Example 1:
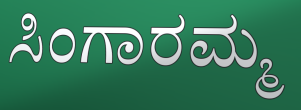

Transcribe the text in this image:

ಸಿಂಗಾರಮ್ಮ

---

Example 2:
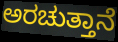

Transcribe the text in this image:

ಅರಚುತ್ತಾನೆ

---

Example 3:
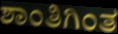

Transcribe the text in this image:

ಶಾಂತಿಗಿಂತ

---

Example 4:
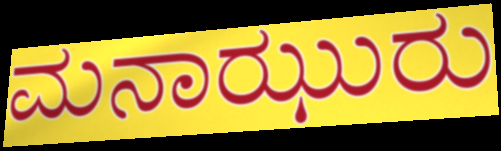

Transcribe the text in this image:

ಮನಾಝುರು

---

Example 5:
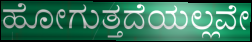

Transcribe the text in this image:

ಹೋಗುತ್ತದೆಯಲ್ಲವೇ